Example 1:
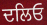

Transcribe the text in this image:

ਦਲਿਓ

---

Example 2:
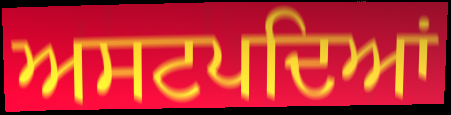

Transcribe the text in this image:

ਅਸਟਪਦਿਆਂ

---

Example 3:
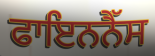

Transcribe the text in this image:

ਫਾਇਨਨੈੱਸ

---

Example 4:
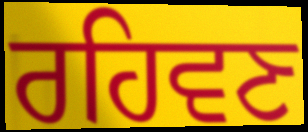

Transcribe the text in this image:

ਰਹਿਵਣ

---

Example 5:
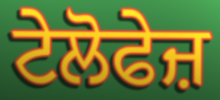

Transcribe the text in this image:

ਟੇਲੋਫੇਜ਼